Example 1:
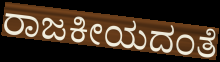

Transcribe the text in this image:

ರಾಜಕೀಯದಂತೆ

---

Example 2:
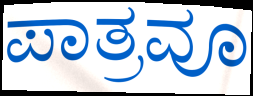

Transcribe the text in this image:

ಪಾತ್ರವೂ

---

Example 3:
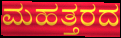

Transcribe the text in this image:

ಮಹತ್ತರದ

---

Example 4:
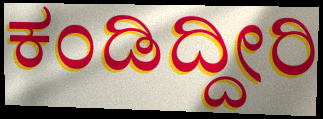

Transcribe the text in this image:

ಕಂಡಿದ್ದೀರಿ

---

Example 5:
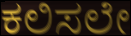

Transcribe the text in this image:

ಕಲಿಸಲೇ